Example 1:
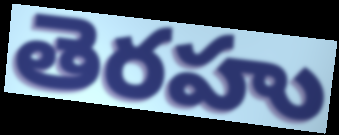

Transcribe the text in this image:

తెరహు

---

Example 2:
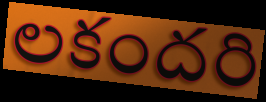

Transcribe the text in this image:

లకందరి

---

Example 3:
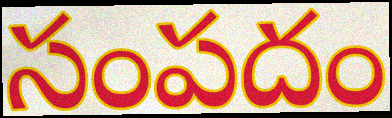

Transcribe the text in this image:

సంపదం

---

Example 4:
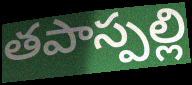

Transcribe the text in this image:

తపాస్పల్లి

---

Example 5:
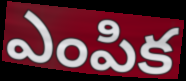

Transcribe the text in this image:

ఎంపిక